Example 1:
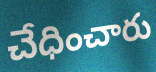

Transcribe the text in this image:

చేధించారు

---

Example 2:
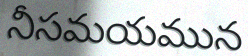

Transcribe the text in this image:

నీసమయమున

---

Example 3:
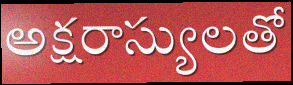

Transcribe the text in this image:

అక్షరాస్యులతో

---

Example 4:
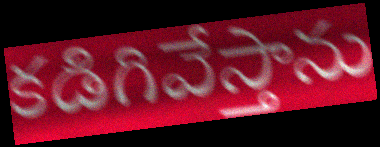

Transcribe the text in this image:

కడిగివేస్తాను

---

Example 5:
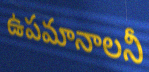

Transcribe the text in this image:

ఉపమానాలనీ